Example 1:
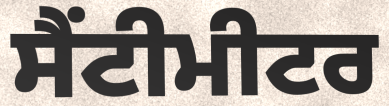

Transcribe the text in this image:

ਸੈਂਟੀਮੀਟਰ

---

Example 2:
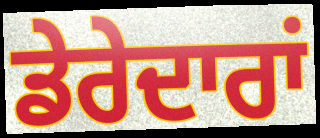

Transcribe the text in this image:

ਡੇਰੇਦਾਰਾਂ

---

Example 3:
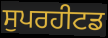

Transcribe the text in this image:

ਸੁਪਰਹੀਟਡ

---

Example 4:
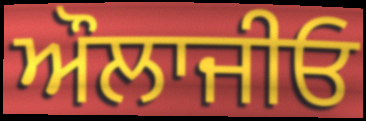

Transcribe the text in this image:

ਔਲਾਜੀਓ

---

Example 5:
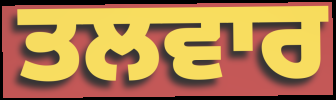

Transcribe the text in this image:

ਤਲਵਾਰ